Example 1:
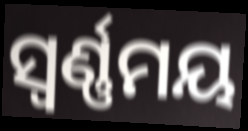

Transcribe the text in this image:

ସ୍ଵର୍ଣ୍ଣମୟ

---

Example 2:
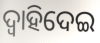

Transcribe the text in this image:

ଦ୍ୱାହିଦେଇ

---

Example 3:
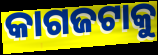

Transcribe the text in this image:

କାଗଜଟାକୁ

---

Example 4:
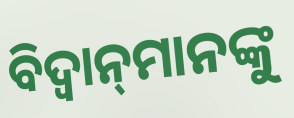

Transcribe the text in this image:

ବିଦ୍ଵାନ୍‌ମାନଙ୍କୁ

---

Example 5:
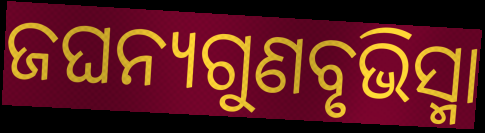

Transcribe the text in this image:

ଜଘନ୍ୟଗୁଣବୃଭିସ୍ମା